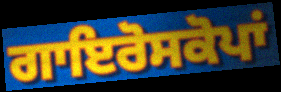
ਗਾਇਰੋਸਕੋਪਾਂ